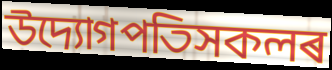
উদ্যোগপতিসকলৰ